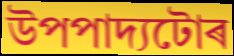
উপপাদ্যটোৰ